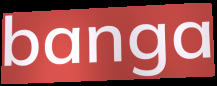
banga